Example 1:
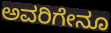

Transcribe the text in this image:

ಅವರಿಗೇನೂ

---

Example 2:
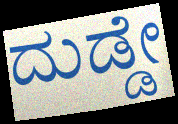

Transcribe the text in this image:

ದುಡ್ಡೇ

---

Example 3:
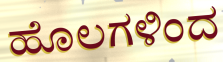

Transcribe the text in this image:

ಹೊಲಗಳಿಂದ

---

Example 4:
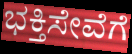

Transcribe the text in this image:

ಭಕ್ತಿಸೇವೆಗೆ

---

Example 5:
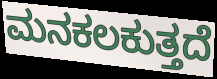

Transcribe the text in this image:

ಮನಕಲಕುತ್ತದೆ